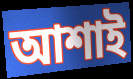
আশাই